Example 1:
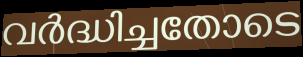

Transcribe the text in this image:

വർദ്ധിച്ചതോടെ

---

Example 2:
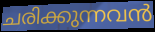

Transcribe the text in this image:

ചരിക്കുന്നവൻ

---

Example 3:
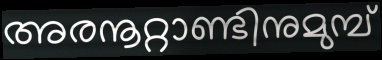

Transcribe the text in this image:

അരനൂറ്റാണ്ടിനുമുമ്പ്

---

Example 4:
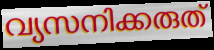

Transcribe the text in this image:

വ്യസനിക്കരുത്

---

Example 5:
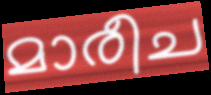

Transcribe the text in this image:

മാരീച